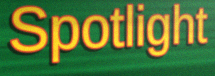
Spotlight